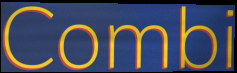
Combi